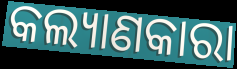
କଲ୍ୟାଣକାରା